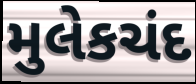
મુલેકચંદ